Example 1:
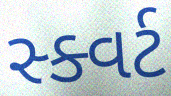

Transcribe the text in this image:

સ્ક્વર્ટ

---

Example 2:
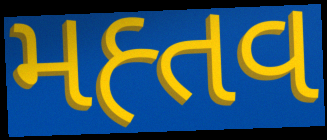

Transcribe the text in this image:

મહ્તવ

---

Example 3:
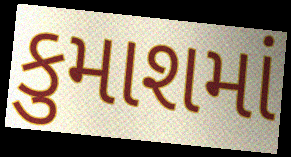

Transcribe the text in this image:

કુમાશમાં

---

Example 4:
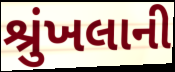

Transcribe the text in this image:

શ્રુંખલાની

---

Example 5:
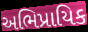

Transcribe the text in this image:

અભિપ્રાયિક